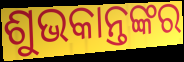
ଶୁଭକାନ୍ତଙ୍କର